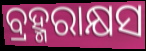
ବ୍ରହ୍ମରାକ୍ଷସ